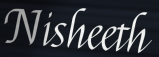
Nisheeth